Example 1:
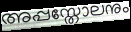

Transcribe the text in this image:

അപ്പസ്തോലനും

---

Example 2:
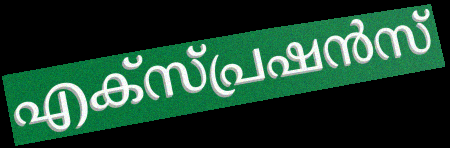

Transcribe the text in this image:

എക്സ്പ്രഷൻസ്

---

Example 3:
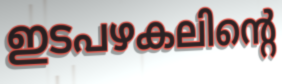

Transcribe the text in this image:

ഇടപഴകലിന്റെ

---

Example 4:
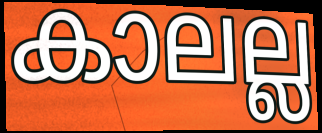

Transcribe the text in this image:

കാലല്ല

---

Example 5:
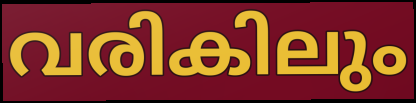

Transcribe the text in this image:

വരികിലും